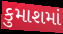
કુમાશમાં